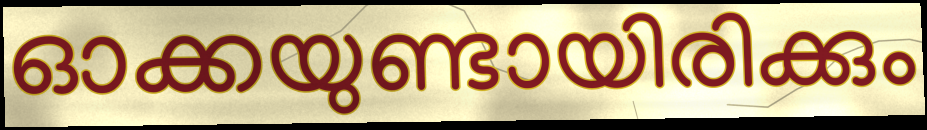
ഓക്കയുണ്ടായിരിക്കും